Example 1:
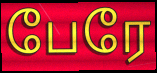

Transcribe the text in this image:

பேரே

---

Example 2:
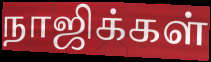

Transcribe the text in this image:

நாஜிக்கள்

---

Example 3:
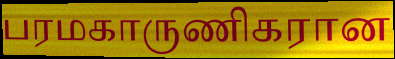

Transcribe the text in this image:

பரமகாருணிகரான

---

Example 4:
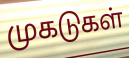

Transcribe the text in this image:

முகடுகள்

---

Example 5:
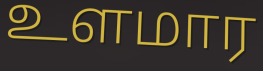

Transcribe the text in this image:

உளமார